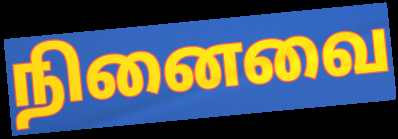
நினைவை